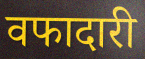
वफादारी